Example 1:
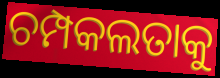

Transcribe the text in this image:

ଚମ୍ପକଲତାକୁ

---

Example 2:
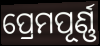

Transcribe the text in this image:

ପ୍ରେମପୂର୍ଣ୍ଣ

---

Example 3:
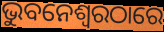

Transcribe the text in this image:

ଭୁବନେଶ୍ଵରଠାରେ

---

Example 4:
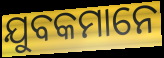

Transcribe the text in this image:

ଯୁବକମାନେ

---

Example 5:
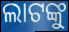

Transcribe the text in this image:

ଲାଟଙ୍କୁ